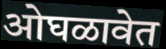
ओघळावेत